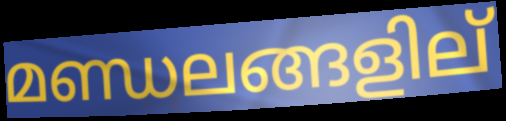
മണ്ഡലങ്ങളില്